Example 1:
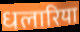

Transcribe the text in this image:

धलारिया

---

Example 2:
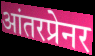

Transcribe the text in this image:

आंतरप्रेनर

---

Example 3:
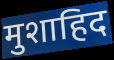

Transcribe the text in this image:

मुशाहिद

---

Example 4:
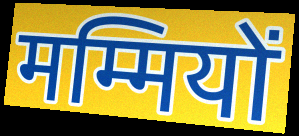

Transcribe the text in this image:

मम्मियों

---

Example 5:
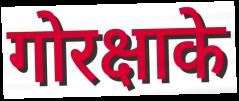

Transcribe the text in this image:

गोरक्षाके